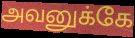
அவனுக்கே